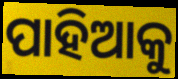
ପାହିଆକୁ